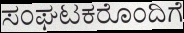
ಸಂಘಟಕರೊಂದಿಗೆ